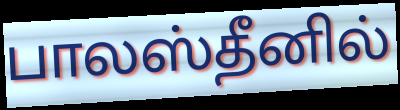
பாலஸ்தீனில்